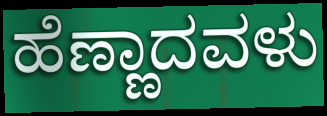
ಹೆಣ್ಣಾದವಳು